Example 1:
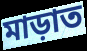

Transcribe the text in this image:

মাড়াত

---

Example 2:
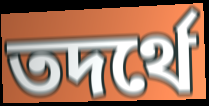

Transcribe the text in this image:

তদর্থে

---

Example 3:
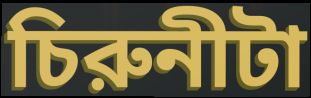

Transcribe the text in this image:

চিরুনীটা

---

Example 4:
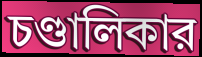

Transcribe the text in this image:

চণ্ডালিকার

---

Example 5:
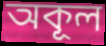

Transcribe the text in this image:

অকূল